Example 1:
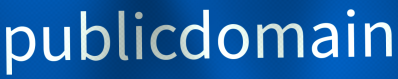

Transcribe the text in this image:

publicdomain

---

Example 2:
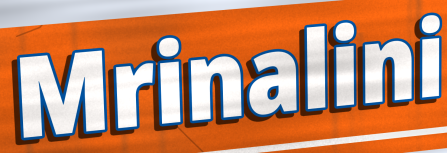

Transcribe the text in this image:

Mrinalini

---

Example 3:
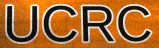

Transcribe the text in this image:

UCRC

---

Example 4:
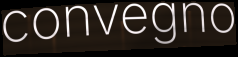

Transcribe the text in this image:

convegno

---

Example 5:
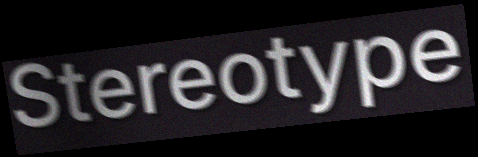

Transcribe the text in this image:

Stereotype